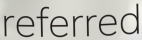
referred